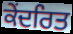
ਕੇਂਦਰਿਤ